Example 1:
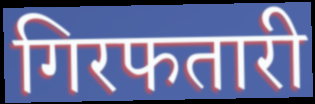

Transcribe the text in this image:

गिरफतारी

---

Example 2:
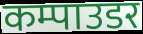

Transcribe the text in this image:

कम्पाउडर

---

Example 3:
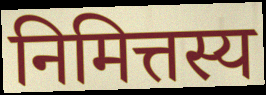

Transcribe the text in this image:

निमित्तस्य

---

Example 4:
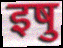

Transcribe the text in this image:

इषु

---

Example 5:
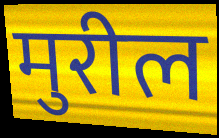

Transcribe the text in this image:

मुरील